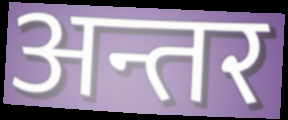
अन्‍तर